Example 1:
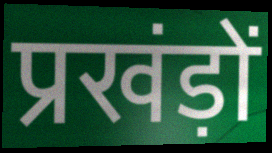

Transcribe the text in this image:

प्रखंड़ों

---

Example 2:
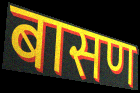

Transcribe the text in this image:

बासण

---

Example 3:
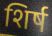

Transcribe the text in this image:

शिर्ष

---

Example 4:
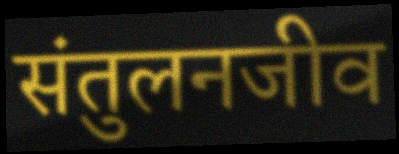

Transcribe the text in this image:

संतुलनजीव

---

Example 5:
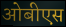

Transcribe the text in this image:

ओबीएस